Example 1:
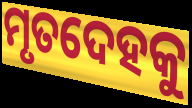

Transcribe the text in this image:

ମୃତଦେହକୁ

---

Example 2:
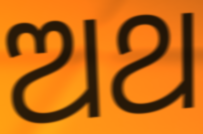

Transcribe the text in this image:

ଅଥ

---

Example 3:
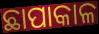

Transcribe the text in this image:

ଛାପାକାଳ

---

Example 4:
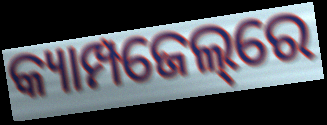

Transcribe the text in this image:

କ୍ୟାମ୍ପଜେଲ୍‌ରେ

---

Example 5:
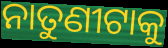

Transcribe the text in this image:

ନାତୁଣୀଟାକୁ